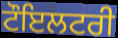
ਟੌਇਲਟਰੀ